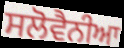
ਸਲੋਵੈਨੀਆ